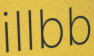
illbb